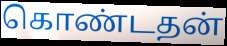
கொண்டதன்